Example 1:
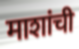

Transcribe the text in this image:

माशांची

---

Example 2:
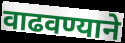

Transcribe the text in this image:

वाढवण्याने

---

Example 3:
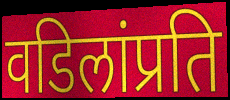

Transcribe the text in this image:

वडिलांप्रति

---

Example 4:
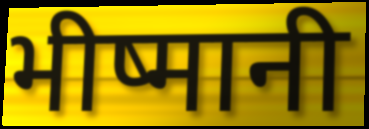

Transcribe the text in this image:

भीष्मानी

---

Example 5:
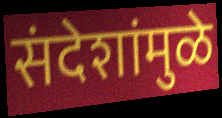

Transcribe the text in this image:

संदेशांमुळे